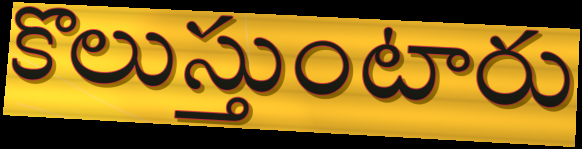
కొలుస్తుంటారు